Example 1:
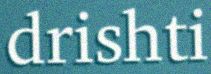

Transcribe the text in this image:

drishti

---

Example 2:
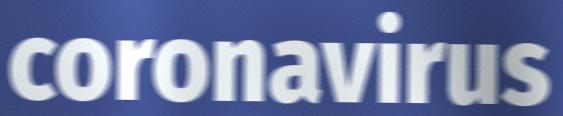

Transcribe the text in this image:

coronavirus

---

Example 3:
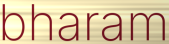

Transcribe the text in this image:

bharam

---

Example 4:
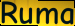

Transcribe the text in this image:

Ruma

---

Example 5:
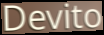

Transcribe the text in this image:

Devito